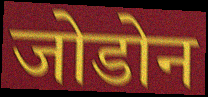
जोडोन